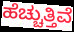
ಹೆಚ್ಚುತ್ತಿವೆ